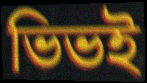
ভিভই